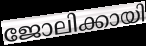
ജോലിക്കായി